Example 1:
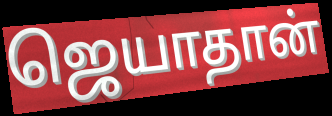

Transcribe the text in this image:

ஜெயாதான்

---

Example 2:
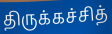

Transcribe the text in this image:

திருக்கச்சித்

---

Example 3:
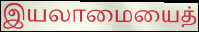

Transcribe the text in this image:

இயலாமையைத்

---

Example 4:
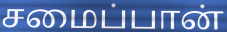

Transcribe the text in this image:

சமைப்பான்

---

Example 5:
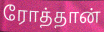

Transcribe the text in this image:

ரோத்தான்